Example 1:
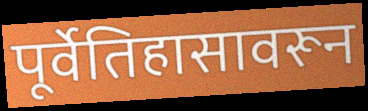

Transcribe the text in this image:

पूर्वेतिहासावरून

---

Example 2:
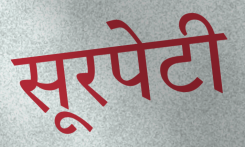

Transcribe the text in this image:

सूरपेटी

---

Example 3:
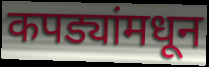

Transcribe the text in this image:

कपड्यांमधून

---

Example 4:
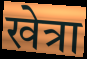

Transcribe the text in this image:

खेत्रा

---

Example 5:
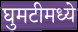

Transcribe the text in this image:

घुमटीमध्ये